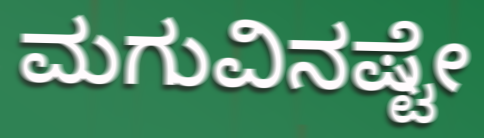
ಮಗುವಿನಷ್ಟೇ